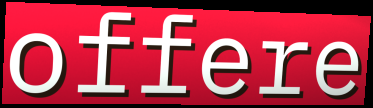
offere